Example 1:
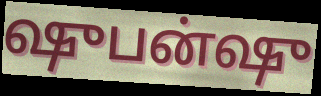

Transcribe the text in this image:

ஷுபன்ஷு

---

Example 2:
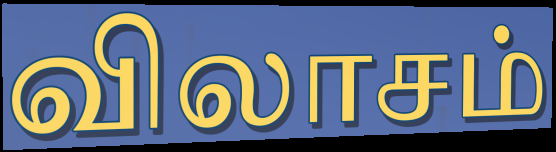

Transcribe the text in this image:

விலாசம்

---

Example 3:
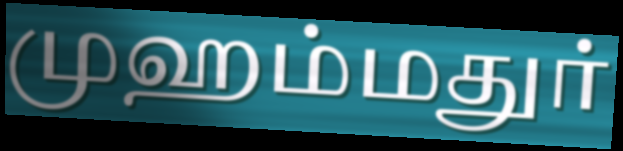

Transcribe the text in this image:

முஹம்மதுர்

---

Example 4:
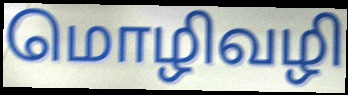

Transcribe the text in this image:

மொழிவழி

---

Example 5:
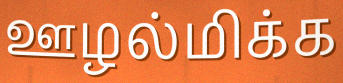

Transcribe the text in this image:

ஊழல்மிக்க